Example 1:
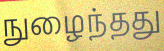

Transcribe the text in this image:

நுழைந்தது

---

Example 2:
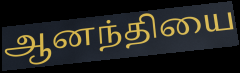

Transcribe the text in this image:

ஆனந்தியை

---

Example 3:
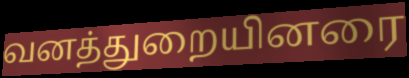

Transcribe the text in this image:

வனத்துறையினரை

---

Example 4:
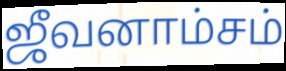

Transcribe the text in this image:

ஜீவனாம்சம்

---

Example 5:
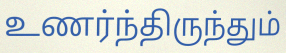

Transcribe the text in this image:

உணர்ந்திருந்தும்